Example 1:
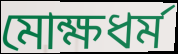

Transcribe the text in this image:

মোক্ষধর্ম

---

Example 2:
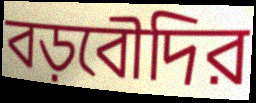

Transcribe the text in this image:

বড়বৌদির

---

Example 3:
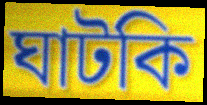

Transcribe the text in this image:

ঘাটকি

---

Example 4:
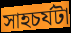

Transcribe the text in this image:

সাহচর্যটা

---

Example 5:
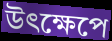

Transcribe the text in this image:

উৎক্ষেপে